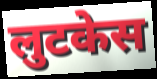
लुटकेस